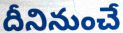
దీనినుంచే